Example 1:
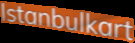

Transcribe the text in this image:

Istanbulkart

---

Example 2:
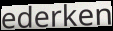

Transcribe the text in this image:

ederken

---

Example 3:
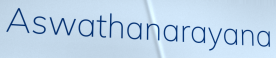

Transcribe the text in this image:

Aswathanarayana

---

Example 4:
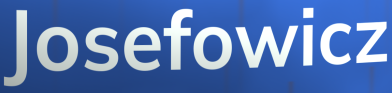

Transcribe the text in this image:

Josefowicz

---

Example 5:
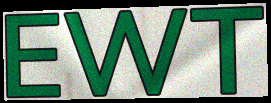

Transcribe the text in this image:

EWT